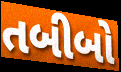
તબીબો